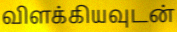
விளக்கியவுடன்